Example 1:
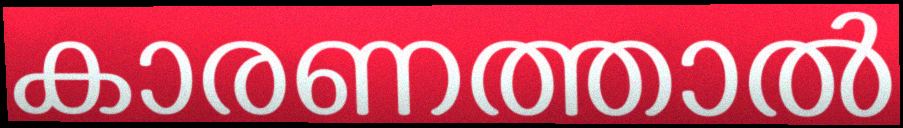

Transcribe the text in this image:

കാരണത്താൽ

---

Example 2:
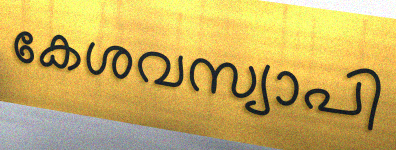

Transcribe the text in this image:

കേശവസ്യാപി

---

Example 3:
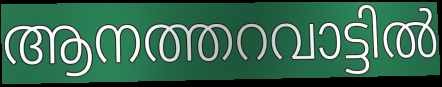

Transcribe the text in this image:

ആനത്തറവാട്ടിൽ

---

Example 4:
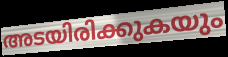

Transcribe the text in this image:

അടയിരിക്കുകയും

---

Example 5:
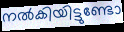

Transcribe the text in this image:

നൽകിയിട്ടുണ്ടോ